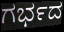
ಗರ್ಭದ